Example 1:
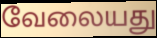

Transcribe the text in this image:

வேலையது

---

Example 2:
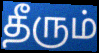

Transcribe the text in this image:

தீரும்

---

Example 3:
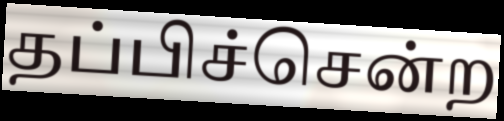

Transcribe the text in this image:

தப்பிச்சென்ற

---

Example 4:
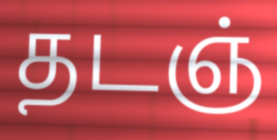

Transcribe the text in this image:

தடஞ்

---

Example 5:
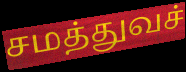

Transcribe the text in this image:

சமத்துவச்